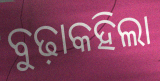
ବୁଢ଼ାକହିଲା